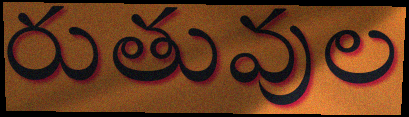
రుతువుల